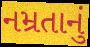
નમ્રતાનું